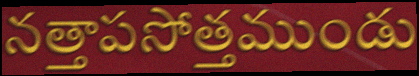
నత్తాపసోత్తముండు